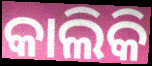
କାଲିକି